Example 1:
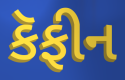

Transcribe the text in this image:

કૅફીન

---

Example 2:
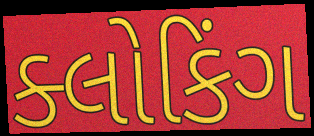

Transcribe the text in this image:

ક્લોકિંગ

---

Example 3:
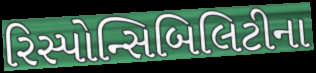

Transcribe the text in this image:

રિસ્પોન્સિબિલિટીના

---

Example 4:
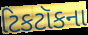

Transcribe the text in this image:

ટિકટૉકના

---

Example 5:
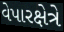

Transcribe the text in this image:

વેપારક્ષેત્રે